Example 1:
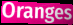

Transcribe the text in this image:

Oranges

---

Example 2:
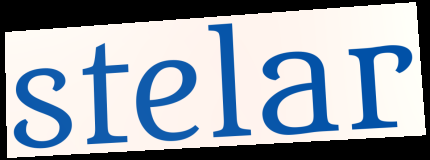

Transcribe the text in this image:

stelar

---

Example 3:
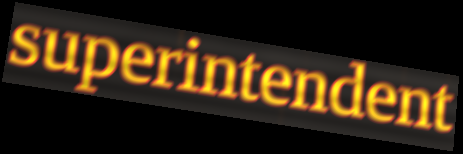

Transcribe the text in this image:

superintendent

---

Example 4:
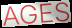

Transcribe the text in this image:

AGES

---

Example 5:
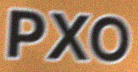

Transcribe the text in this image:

PXO